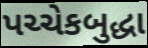
પચ્ચેકબુદ્ધા